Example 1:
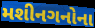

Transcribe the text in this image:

મશીનગનોના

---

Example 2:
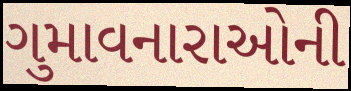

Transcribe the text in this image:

ગુમાવનારાઓની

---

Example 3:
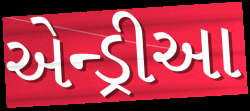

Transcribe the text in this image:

એન્ડ્રીઆ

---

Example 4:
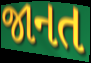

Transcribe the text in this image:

જાનત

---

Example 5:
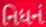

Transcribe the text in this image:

નિધનં